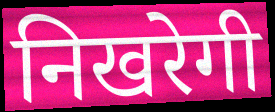
निखरेगी